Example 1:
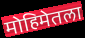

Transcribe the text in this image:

मोहिमेतला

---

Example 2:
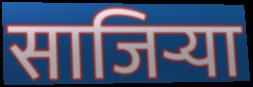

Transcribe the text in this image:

साजिर्‍या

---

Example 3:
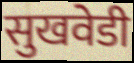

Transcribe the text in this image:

सुखवेडी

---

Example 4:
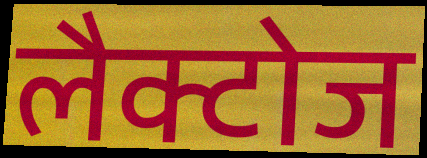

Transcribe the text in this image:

लैक्टोज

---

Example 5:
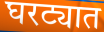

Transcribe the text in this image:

घरट्यात